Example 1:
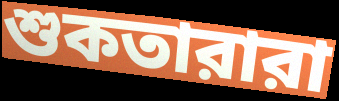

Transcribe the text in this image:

শুকতারারা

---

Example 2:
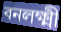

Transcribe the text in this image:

বনলক্ষ্মী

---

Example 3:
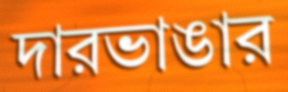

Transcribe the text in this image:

দারভাঙার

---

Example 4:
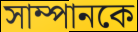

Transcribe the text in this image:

সাম্পানকে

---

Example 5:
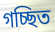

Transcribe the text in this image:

গচ্ছিত